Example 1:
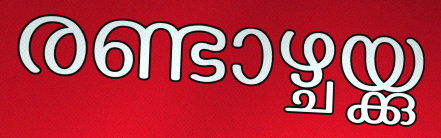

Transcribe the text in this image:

രണ്ടാഴ്ചയ്ക്കു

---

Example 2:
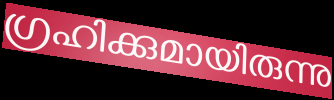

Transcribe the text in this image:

ഗ്രഹിക്കുമായിരുന്നു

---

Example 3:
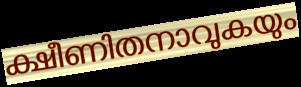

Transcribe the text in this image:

ക്ഷീണിതനാവുകയും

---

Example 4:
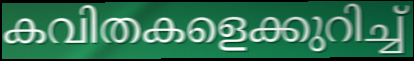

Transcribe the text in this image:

കവിതകളെക്കുറിച്ച്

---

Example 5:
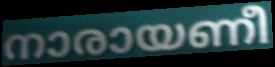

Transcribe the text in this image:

നാരായണീ